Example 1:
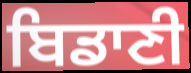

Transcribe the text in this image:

ਬਿਡਾਣੀ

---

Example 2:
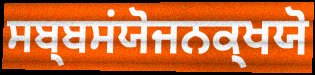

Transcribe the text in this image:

ਸਬ੍ਬਸਂਯੋਜਨਕ੍ਖਯੋ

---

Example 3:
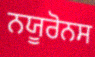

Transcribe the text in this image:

ਨਯੂਰੋਨਸ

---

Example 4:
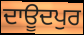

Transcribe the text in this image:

ਦਾਊਦਪੁਰ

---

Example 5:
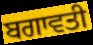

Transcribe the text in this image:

ਬਗਾਵਤੀ